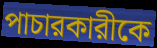
পাচারকারীকে